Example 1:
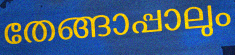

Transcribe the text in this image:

തേങ്ങാപ്പാലും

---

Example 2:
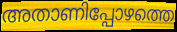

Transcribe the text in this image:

അതാണിപ്പോഴത്തെ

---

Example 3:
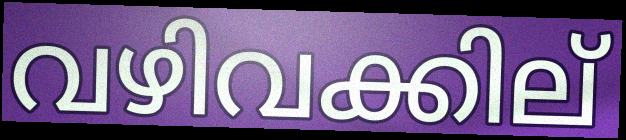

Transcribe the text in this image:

വഴിവക്കില്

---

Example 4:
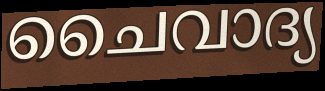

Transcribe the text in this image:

ചൈവാദ്യ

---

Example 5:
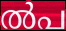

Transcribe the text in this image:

ൽപ